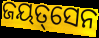
ଜୟତ୍‌ସେନ